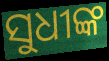
ସୁଧୀଙ୍କ